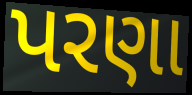
પરણા